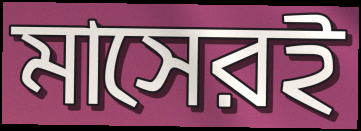
মাসেরই